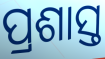
ପ୍ରଶାସ୍ତ